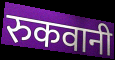
रुकवानी